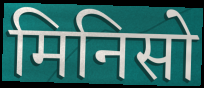
मिनिसो